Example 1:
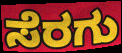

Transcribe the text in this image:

ಸೆರಗು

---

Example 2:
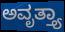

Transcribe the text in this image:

ಅವೃತ್ತ್ಯಾ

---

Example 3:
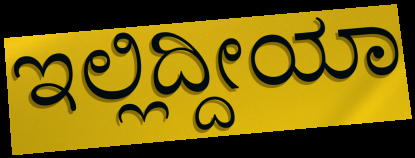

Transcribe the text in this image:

ಇಲ್ಲಿದ್ದೀಯಾ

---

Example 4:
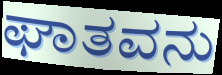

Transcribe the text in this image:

ಘಾತವನು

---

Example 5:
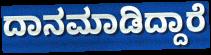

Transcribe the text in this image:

ದಾನಮಾಡಿದ್ದಾರೆ